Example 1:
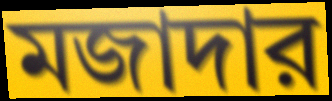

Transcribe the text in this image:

মজাদার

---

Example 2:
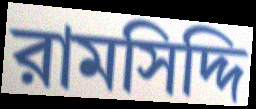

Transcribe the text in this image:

রামসিদ্দি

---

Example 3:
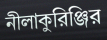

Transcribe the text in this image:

নীলাকুরিঞ্জির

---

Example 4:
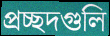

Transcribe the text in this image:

প্রচ্ছদগুলি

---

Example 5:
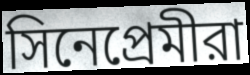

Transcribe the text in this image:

সিনেপ্রেমীরা